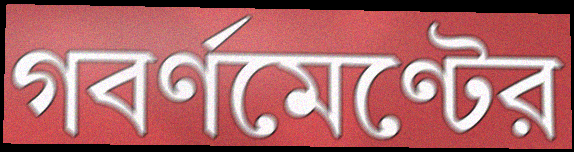
গবর্ণমেণ্টের